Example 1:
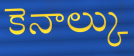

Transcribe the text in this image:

కెనాల్కు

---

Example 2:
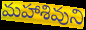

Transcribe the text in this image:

మహాశివుని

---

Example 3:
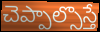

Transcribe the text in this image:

చెప్పాల్సొస్తే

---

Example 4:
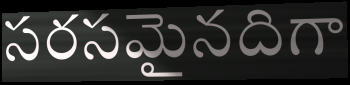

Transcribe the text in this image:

సరసమైనదిగా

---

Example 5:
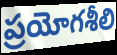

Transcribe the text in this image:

ప్రయోగశీలి